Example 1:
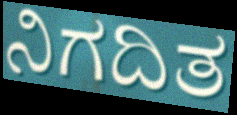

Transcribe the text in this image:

ನಿಗದಿತ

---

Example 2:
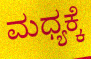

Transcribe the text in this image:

ಮಧ್ಯಕ್ಕೆ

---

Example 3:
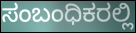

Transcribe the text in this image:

ಸಂಬಂಧಿಕರಲ್ಲಿ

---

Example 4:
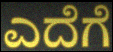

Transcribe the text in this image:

ಎದೆಗೆ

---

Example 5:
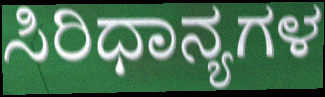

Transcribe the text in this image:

ಸಿರಿಧಾನ್ಯಗಳ